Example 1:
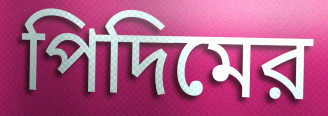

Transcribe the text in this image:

পিদিমের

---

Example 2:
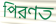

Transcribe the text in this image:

পিরণত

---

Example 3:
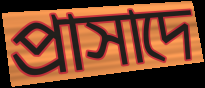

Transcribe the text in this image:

প্রাসাদে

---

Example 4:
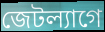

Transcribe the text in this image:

জেটল্যাগে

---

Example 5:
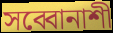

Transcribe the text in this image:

সব্বোনাশী